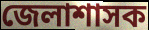
জেলাশাসক